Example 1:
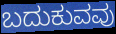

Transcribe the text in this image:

ಬದುಕುವವು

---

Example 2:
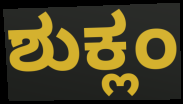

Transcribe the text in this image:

ಶುಕ್ಲಂ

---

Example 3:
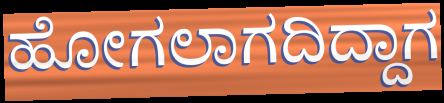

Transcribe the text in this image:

ಹೋಗಲಾಗದಿದ್ದಾಗ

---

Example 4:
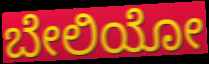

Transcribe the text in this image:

ಬೇಲಿಯೋ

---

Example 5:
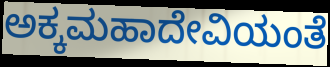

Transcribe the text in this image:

ಅಕ್ಕಮಹಾದೇವಿಯಂತೆ